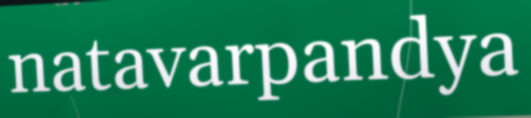
natavarpandya